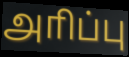
அரிப்பு